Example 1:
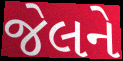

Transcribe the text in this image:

જેલને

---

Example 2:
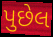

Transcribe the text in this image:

પુછેલ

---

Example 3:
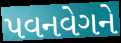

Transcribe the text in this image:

પવનવેગને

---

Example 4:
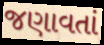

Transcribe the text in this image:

જણાવતાં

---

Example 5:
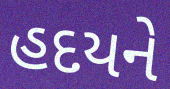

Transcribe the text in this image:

હદયને